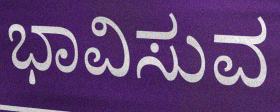
ಭಾವಿಸುವ